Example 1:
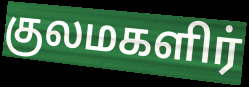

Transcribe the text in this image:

குலமகளிர்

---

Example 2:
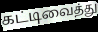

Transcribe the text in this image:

கட்டிவைத்து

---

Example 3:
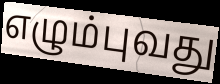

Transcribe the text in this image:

எழும்புவது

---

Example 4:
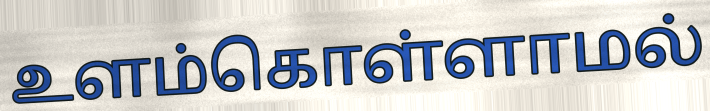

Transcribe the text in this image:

உளம்கொள்ளாமல்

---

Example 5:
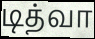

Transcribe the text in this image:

டித்வா